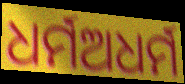
ଧର୍ମଅଧର୍ମ